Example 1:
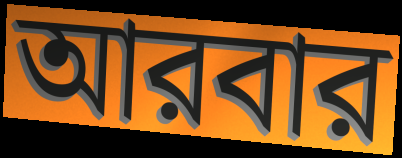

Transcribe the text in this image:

আরবার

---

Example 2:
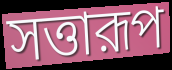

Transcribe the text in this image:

সত্তারূপ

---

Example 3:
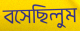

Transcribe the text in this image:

বসেছিলুম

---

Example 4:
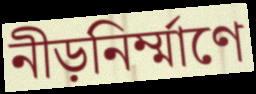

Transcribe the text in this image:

নীড়নির্ম্মাণে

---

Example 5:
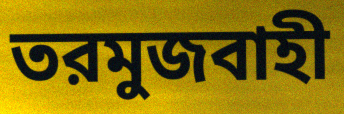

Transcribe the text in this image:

তরমুজবাহী